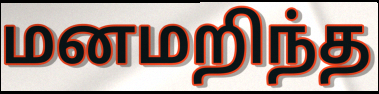
மனமறிந்த